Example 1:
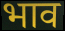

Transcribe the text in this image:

भाव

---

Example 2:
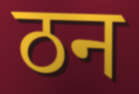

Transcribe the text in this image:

ठन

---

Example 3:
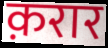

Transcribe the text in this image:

क़रार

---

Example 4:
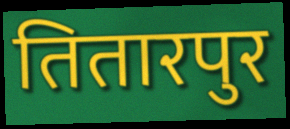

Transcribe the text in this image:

तितारपुर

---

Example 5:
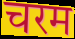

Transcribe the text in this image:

चरम